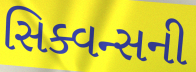
સિક્વન્સની